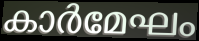
കാർമേഘം